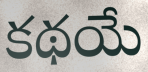
కథయే